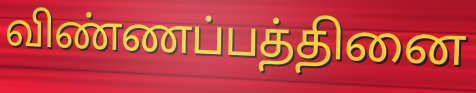
விண்ணப்பத்தினை